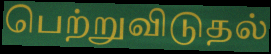
பெற்றுவிடுதல்